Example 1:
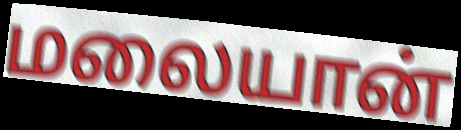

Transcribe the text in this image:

மலையான்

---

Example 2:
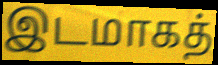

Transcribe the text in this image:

இடமாகத்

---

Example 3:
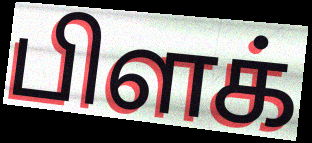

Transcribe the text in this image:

பிளக்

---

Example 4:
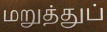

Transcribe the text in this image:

மறுத்துப்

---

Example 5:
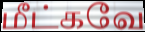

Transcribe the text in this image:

மீட்கவே